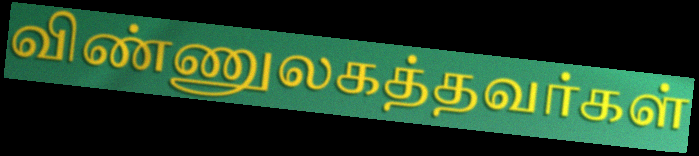
விண்ணுலகத்தவர்கள்